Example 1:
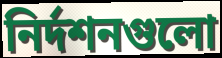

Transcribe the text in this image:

নির্দশনগুলো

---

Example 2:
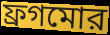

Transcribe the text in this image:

ফ্রগমোর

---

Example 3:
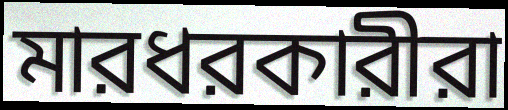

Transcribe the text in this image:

মারধরকারীরা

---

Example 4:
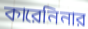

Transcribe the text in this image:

কারেনিনার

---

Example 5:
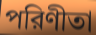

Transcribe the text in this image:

পরিণীতা